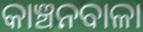
କାଞ୍ଚନବାଳା